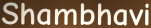
Shambhavi